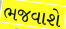
ભજવાશે